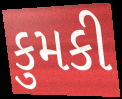
કુમકી